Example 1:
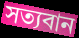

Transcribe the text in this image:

সত্যবান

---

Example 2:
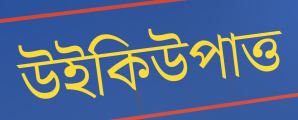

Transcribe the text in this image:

উইকিউপাত্ত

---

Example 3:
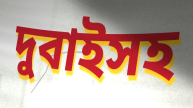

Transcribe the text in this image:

দুবাইসহ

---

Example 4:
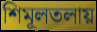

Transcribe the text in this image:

শিমূলতলায়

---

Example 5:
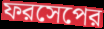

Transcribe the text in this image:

ফরসেপের